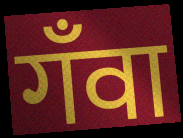
गँवा